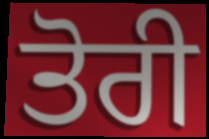
ਤੋਰੀ